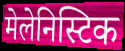
मेलेनिस्टिक